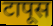
टापूस